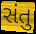
સંતુ